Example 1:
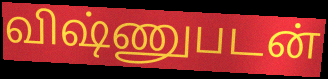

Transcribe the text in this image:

விஷ்ணுபடன்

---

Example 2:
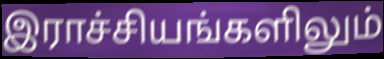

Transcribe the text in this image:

இராச்சியங்களிலும்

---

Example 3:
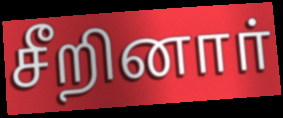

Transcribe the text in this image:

சீறினார்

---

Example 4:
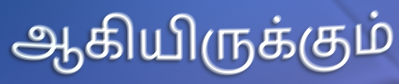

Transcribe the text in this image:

ஆகியிருக்கும்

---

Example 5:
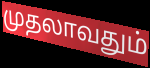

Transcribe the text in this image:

முதலாவதும்